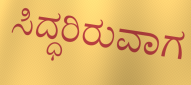
ಸಿದ್ಧರಿರುವಾಗ